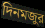
দিনমজুর